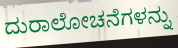
ದುರಾಲೋಚನೆಗಳನ್ನು